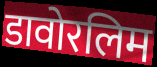
डावोरलिम